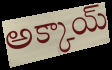
అక్కాయ్